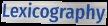
Lexicography